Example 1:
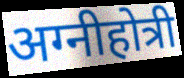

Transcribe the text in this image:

अग्नीहोत्री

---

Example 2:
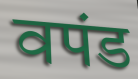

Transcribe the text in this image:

वपंड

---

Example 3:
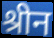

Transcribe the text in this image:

श्रीन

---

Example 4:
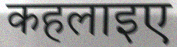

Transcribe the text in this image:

कहलाइए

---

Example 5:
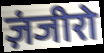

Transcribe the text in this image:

ज़ंजीरो